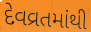
દેવવ્રતમાંથી